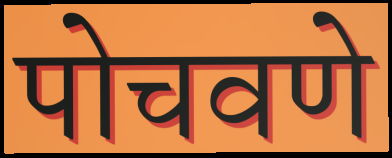
पोचवणे